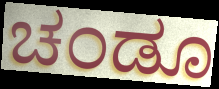
ಚಂಡೂ